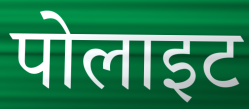
पोलाइट